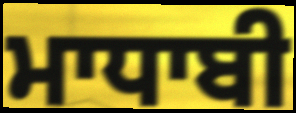
ਮਾਧਾਬੀ